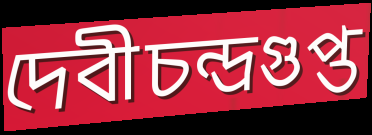
দেবীচন্দ্রগুপ্ত